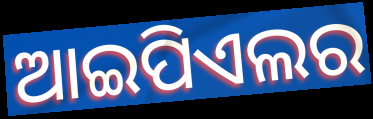
ଆଇପିଏଲର